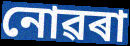
নোৱৰা